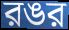
রঙর